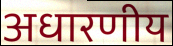
अधारणीय